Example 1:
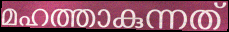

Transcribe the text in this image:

മഹത്താകുന്നത്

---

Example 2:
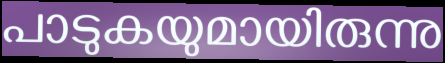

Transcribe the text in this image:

പാടുകയുമായിരുന്നു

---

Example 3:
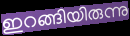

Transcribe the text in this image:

ഇറങ്ങിയിരുന്നു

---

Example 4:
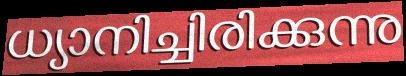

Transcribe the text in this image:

ധ്യാനിച്ചിരിക്കുന്നു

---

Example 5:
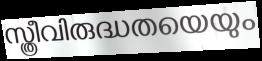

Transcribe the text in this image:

സ്ത്രീവിരുദ്ധതയെയും